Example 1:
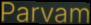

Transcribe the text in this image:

Parvam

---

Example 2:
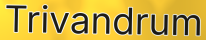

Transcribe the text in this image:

Trivandrum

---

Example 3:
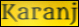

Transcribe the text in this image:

Karanj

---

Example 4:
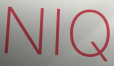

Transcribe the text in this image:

NIQ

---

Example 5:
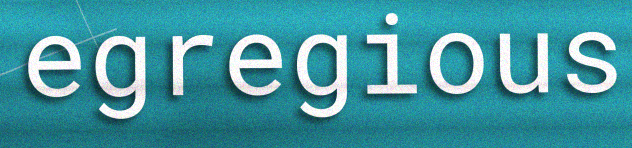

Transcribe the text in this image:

egregious